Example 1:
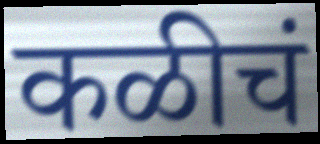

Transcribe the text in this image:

कळीचं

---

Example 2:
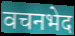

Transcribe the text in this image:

वचनभेद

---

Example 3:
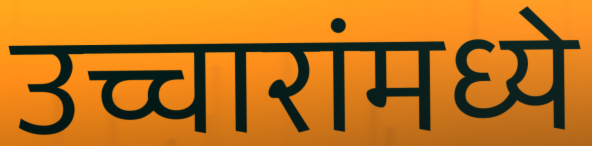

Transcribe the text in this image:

उच्चारांमध्ये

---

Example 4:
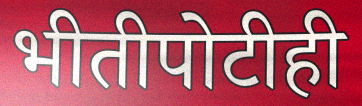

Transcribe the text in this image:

भीतीपोटीही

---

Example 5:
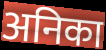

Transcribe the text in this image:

अनिका